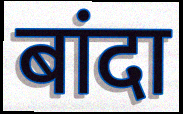
बांदा